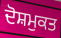
ਦੋਸ਼ਮੁਕਤ